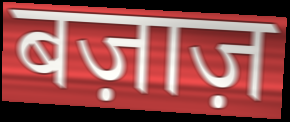
बज़ाज़